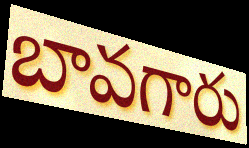
బావగారు